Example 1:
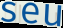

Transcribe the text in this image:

seu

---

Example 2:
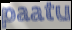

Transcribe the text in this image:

paatu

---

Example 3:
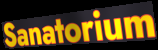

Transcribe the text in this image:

Sanatorium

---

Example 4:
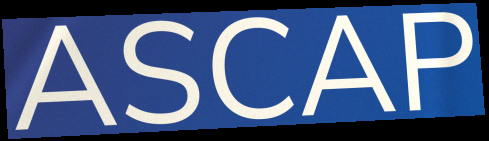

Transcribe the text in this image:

ASCAP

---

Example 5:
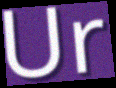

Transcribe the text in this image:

Ur